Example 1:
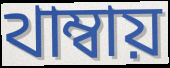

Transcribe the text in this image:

থাম্বায়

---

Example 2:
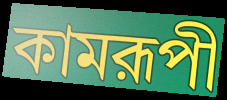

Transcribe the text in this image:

কামরূপী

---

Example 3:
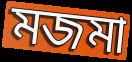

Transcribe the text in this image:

মজমা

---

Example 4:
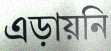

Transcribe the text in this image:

এড়ায়নি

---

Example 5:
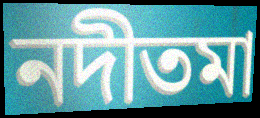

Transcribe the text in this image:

নদীতমা